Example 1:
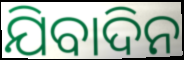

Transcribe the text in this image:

ଯିବାଦିନ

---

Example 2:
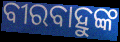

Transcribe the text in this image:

ବୀରବାହୁଙ୍କ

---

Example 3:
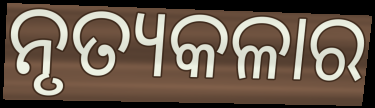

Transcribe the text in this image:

ନୃତ୍ୟକଳାର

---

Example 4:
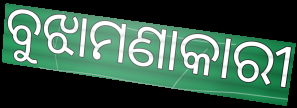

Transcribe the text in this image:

ବୁଝାମଣାକାରୀ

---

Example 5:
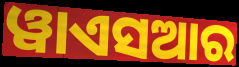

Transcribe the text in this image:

ୱାଏସଆର